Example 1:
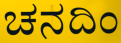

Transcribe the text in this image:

ಚನದಿಂ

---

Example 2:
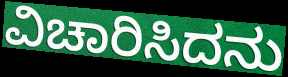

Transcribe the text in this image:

ವಿಚಾರಿಸಿದನು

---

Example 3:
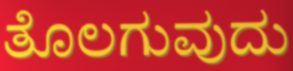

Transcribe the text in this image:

ತೊಲಗುವುದು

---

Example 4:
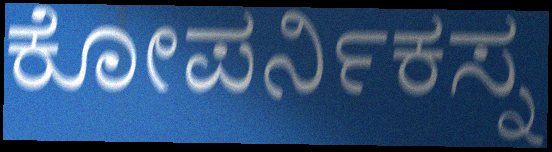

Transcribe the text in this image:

ಕೋಪರ್ನಿಕಸ್ನ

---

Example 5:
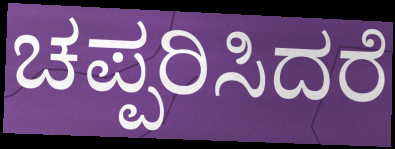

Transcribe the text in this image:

ಚಪ್ಪರಿಸಿದರೆ